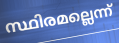
സ്ഥിരമല്ലെന്ന്